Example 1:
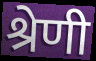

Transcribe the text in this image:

श्रेणी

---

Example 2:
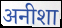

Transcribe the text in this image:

अनीशा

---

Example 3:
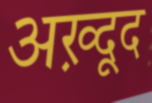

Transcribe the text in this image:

अख़्दूद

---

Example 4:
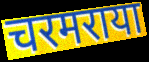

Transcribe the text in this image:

चरमराया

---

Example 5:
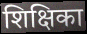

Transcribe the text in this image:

शिक्षिका